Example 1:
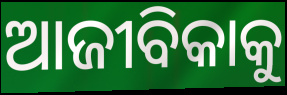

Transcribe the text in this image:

ଆଜୀବିକାକୁ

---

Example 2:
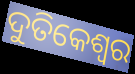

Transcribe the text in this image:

ଦୁତିକେଶ୍ୱର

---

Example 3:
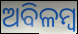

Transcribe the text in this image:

ଅବିଳମ୍ବ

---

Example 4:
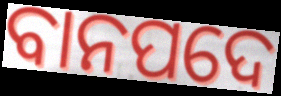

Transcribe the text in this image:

ବାନପଦେ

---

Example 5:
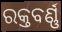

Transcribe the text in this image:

ରକ୍ତବର୍ଣ୍ଣ